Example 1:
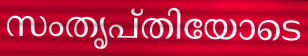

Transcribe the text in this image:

സംതൃപ്തിയോടെ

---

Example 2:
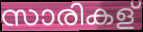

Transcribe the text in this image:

സാരികള്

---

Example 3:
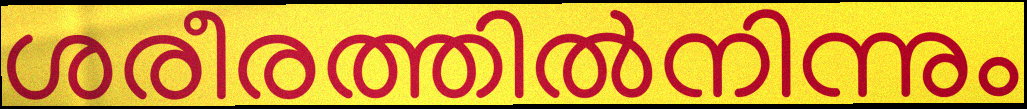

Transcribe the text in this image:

ശരീരത്തിൽനിന്നും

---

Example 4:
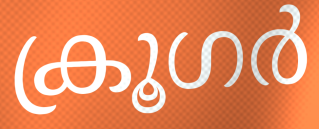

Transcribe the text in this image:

ക്രൂഗർ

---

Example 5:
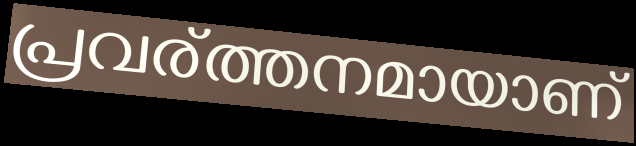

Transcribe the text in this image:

പ്രവര്ത്തനമായാണ്